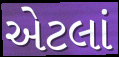
એટલાં